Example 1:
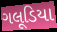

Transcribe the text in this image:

ગલૂડિયા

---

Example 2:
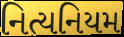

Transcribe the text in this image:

નિત્યનિયમ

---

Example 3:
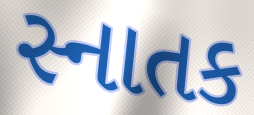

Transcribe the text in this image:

સ્નાતક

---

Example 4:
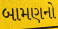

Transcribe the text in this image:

બામણનો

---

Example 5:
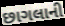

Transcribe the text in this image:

છાગલાની